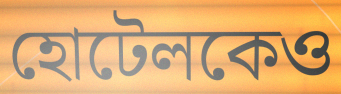
হোটেলকেও